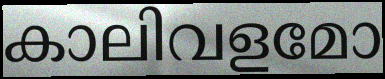
കാലിവളമോ